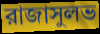
রাজাসুলভ